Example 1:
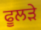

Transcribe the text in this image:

ਫੂਲੜੇ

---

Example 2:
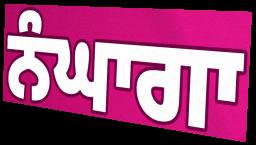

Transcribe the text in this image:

ਨੰਘਾਗਾ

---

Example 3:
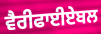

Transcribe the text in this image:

ਵੈਰੀਫਾਈਏਬਲ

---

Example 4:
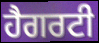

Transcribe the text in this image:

ਹੈਗਰਟੀ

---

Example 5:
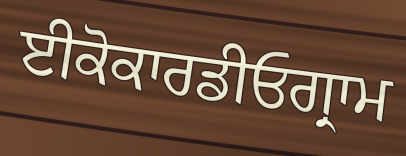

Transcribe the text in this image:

ਈਕੋਕਾਰਡੀਓਗ੍ਰਾਮ